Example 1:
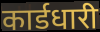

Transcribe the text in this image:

कार्डधारी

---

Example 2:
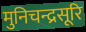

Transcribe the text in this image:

मुनिचन्द्रसूरि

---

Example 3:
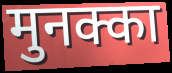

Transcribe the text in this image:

मुनक्का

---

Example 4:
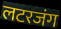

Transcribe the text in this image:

लटरजंग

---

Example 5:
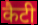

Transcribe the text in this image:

कैटी